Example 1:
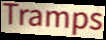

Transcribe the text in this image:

Tramps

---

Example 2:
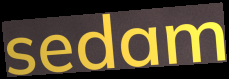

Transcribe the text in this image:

sedam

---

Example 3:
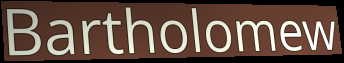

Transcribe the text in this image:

Bartholomew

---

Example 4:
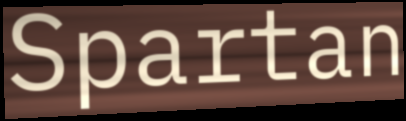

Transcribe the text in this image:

Spartan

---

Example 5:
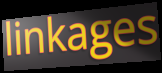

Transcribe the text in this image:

linkages